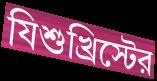
যিশুখ্রিস্টের